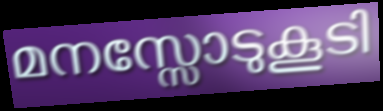
മനസ്സോടുകൂടി